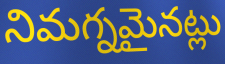
నిమగ్నమైనట్లు